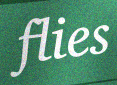
flies